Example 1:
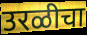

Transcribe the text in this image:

उरळीचा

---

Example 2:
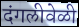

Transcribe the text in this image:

दंगलीवेळी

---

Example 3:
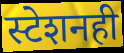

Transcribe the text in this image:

स्टेशनही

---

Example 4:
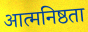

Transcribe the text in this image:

आत्मनिष्ठता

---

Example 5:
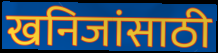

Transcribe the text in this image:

खनिजांसाठी